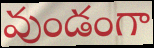
వుండంగా